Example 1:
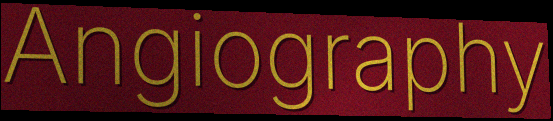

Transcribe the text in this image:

Angiography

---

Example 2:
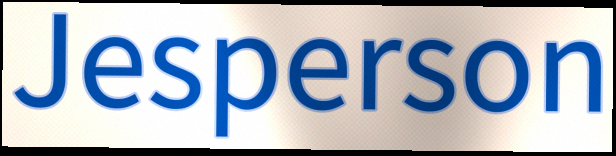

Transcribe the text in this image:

Jesperson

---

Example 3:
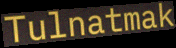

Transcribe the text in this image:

Tulnatmak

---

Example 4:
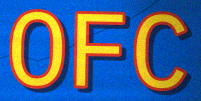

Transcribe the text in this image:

OFC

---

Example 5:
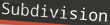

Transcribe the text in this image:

Subdivision